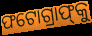
ଫଟୋଗ୍ରାଫ୍‌କୁ